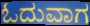
ಓದುವಾಗ